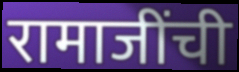
रामाजींची